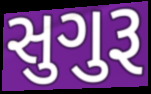
સુગુરૂ